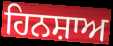
ਹਿਨਸ਼ਾਅ